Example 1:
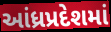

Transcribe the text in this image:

આંધ્રપ્રદેશમાં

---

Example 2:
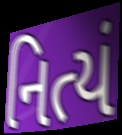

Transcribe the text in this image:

નિત્યં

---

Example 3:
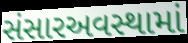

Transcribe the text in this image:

સંસારઅવસ્થામાં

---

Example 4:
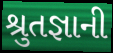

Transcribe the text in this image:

શ્રુતજ્ઞાની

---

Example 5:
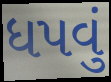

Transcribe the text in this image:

ધપવું